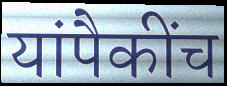
यांपैकींच